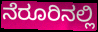
ನೆರೂರಿನಲ್ಲಿ